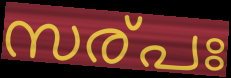
സര്പഃ